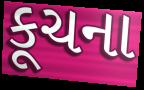
કૂચના